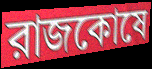
রাজকোষে